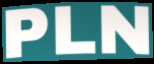
PLN